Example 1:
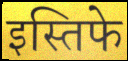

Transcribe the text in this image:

इस्तिफे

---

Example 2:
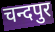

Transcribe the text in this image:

चन्दपुर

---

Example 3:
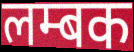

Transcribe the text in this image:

लम्बक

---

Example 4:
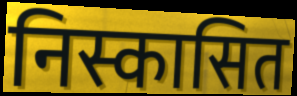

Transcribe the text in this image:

निस्कासित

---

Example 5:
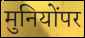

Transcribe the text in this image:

मुनियोंपर